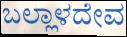
ಬಲ್ಲಾಳದೇವ